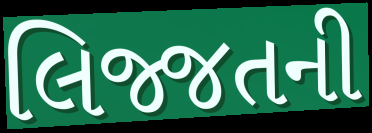
લિજ્જતની